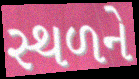
સ્થળને